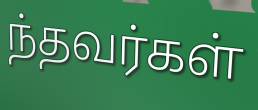
ந்தவர்கள்